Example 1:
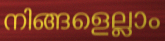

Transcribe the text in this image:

നിങ്ങളെല്ലാം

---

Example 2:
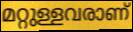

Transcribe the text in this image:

മറ്റുള്ളവരാണ്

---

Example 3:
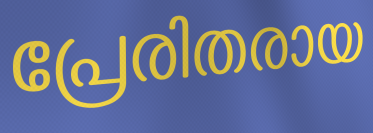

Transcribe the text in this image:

പ്രേരിതരായ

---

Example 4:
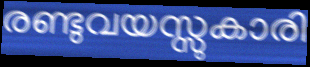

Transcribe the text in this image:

രണ്ടുവയസ്സുകാരി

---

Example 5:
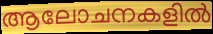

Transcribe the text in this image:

ആലോചനകളിൽ